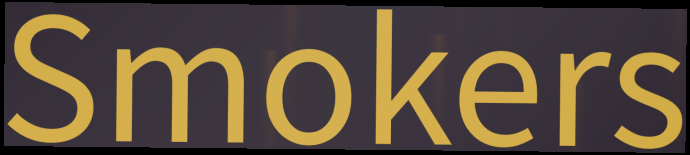
Smokers